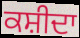
ਕਸ਼ੀਦਾ